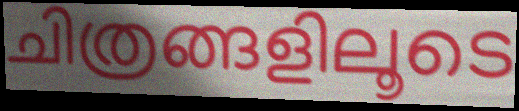
ചിത്രങ്ങളിലൂടെ